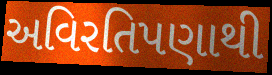
અવિરતિપણાથી